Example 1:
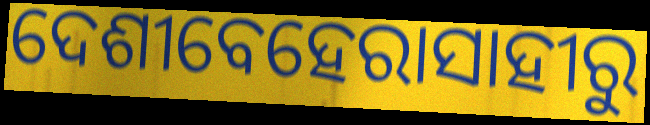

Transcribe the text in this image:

ଦେଶୀବେହେରାସାହୀରୁ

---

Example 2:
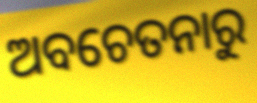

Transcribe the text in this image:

ଅବଚେତନାରୁ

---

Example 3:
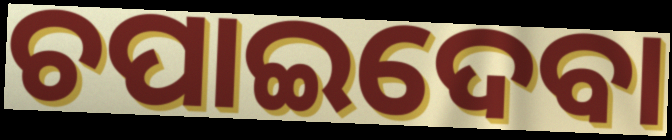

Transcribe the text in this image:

ଚପାଇଦେବା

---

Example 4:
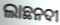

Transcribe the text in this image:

ଲାଛନଦୀ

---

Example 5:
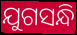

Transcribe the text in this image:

ଯୁଗସନ୍ଧି